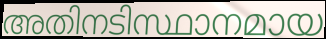
അതിനടിസ്ഥാനമായ